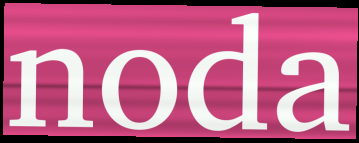
noda